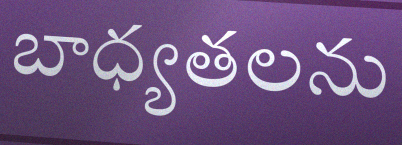
బాధ్యతలను